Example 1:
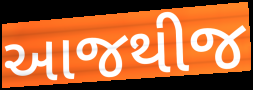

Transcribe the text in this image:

આજથીજ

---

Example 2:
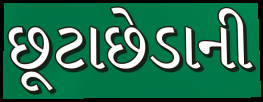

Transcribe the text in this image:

છૂટાછેડાની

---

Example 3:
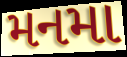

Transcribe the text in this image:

મનમા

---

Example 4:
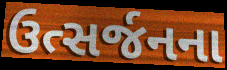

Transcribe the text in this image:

ઉત્સર્જનના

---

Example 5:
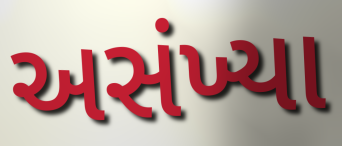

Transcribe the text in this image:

અસંખ્યા